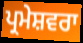
ਪ੍ਰਮੇਸ਼ਵਰਾ